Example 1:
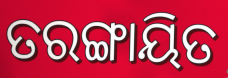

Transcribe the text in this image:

ତରଙ୍ଗାୟିତ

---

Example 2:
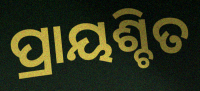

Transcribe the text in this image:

ପ୍ରାୟଶ୍ଚିତ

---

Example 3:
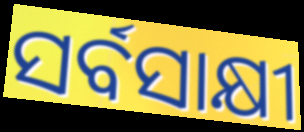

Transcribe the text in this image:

ସର୍ବସାକ୍ଷୀ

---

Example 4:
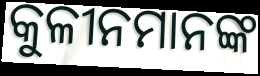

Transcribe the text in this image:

କୁଳୀନମାନଙ୍କ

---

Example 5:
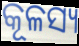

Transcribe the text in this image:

କୂଳସ୍ଯ